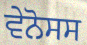
ਵੇਨੋਸਸ